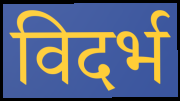
विदर्भ